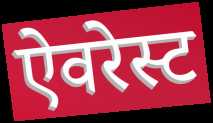
ऐवरेस्ट